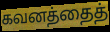
கவனத்தைத்